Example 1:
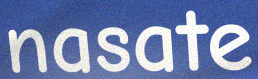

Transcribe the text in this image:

nasate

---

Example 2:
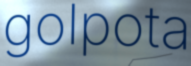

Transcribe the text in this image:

golpota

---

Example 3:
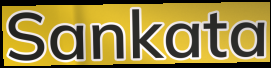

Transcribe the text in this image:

Sankata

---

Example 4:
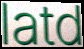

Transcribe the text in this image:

latd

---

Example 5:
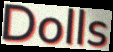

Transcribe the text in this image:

Dolls